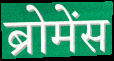
ब्रोमेंस